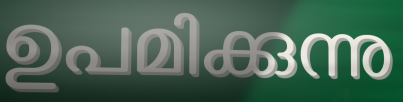
ഉപമിക്കുന്നു